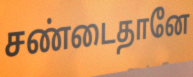
சண்டைதானே